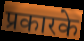
प्रकारके